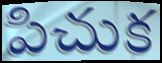
పిచుక